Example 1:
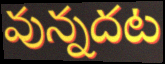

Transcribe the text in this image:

వున్నదట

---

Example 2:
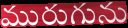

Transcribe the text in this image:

మురుగును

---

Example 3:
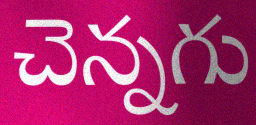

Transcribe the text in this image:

చెన్నగు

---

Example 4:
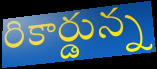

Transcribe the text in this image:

రికార్డున్న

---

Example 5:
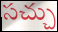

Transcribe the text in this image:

సచ్చు